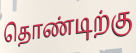
தொண்டிற்கு